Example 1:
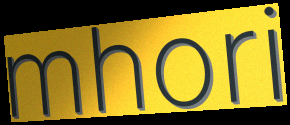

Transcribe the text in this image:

mhori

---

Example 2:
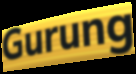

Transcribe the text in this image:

Gurung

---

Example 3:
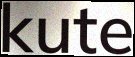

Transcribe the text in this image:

kute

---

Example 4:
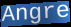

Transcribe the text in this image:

Angre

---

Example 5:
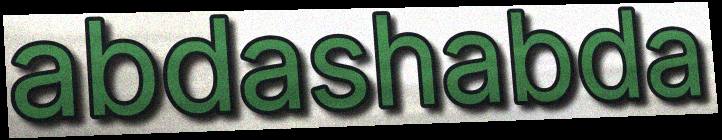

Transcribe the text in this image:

abdashabda